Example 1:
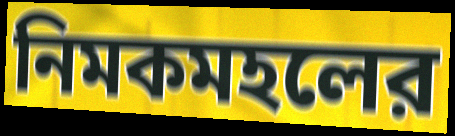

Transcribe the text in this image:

নিমকমহলের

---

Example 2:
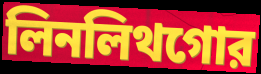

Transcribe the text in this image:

লিনলিথগোর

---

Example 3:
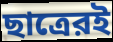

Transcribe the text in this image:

ছাত্রেরই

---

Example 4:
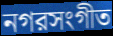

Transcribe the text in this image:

নগরসংগীত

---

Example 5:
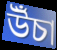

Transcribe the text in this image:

উঁচা